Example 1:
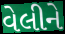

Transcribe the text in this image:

વેલીને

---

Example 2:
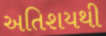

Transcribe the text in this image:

અતિશયથી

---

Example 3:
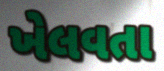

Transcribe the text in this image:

ખેલવતા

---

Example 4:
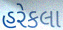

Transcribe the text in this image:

હરેકલા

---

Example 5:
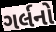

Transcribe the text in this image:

ગર્લનો